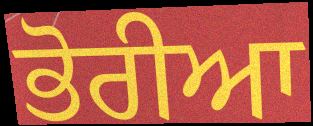
ਭੋਰੀਆ